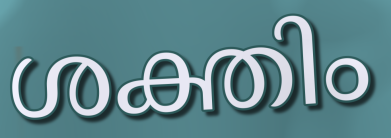
ശക്തിം